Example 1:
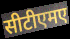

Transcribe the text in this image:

सीटीएमए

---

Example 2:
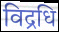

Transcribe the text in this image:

विद्रधि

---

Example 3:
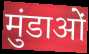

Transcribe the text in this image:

मुंडाओं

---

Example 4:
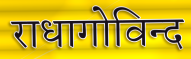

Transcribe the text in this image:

राधागोविन्द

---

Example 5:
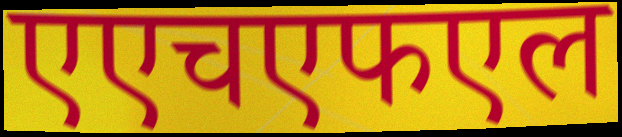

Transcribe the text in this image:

एएचएफएल